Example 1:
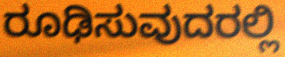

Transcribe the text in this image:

ರೂಢಿಸುವುದರಲ್ಲಿ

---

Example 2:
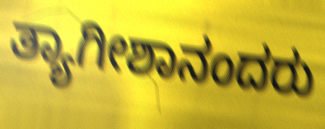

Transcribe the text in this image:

ತ್ಯಾಗೀಶಾನಂದರು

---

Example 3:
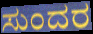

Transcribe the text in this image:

ಸುಂದರ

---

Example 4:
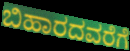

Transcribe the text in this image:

ಬಿಹಾರದವರೆಗೆ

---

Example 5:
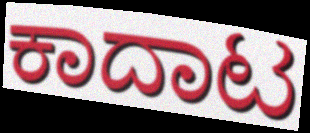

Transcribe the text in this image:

ಕಾದಾಟ